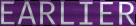
EARLIER